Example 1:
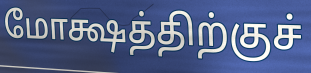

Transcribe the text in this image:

மோக்ஷத்திற்குச்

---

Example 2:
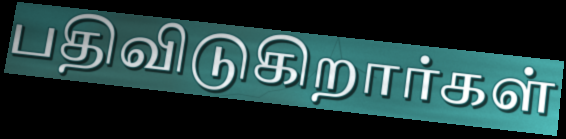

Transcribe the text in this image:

பதிவிடுகிறார்கள்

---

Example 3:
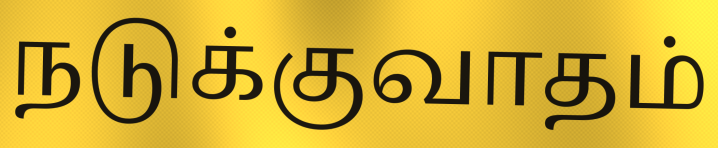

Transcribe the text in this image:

நடுக்குவாதம்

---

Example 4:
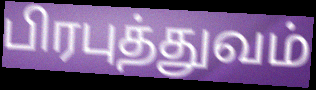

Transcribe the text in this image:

பிரபுத்துவம்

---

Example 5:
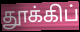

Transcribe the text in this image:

தூக்கிப்